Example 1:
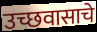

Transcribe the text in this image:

उच्छवासाचे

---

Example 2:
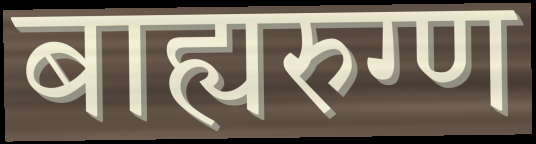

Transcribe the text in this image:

बाह्यरुग्ण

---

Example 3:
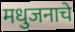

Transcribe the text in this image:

मधुजनाचे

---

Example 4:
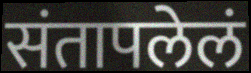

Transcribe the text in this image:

संतापलेलं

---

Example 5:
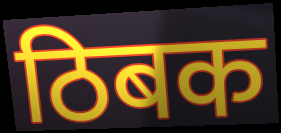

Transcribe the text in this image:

ठिबक